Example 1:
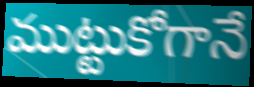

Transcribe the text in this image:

ముట్టుకోగానే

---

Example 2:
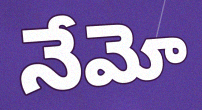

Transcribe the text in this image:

నేమో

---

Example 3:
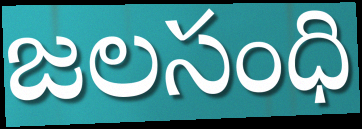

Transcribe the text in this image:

జలసంధి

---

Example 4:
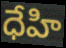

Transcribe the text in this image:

ధేహి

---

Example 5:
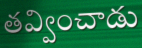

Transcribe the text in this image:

తవ్వించాడు